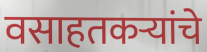
वसाहतकऱ्यांचे